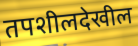
तपशीलदेखील